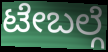
ಟೇಬಲ್ಗೆ